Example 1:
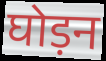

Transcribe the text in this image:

घोड़न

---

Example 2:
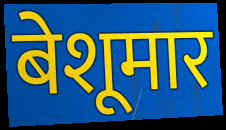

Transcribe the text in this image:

बेशूमार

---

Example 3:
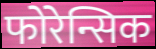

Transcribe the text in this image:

फोरेन्सिक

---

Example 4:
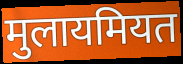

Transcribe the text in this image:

मुलायमियत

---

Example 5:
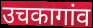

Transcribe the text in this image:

उचकागांव